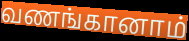
வணங்கானாம்